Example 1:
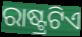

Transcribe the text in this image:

ରାଷ୍ଟ୍ରଟିଏ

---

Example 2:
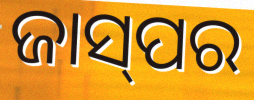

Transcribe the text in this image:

ଜାସ୍‌ପର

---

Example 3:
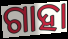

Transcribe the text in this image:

ଗାହା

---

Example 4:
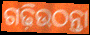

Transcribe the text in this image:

ଗଢ଼ିଉଠନ୍ତା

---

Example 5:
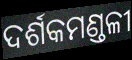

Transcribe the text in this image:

ଦର୍ଶକମଣ୍ଡଳୀ